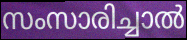
സംസാരിച്ചാൽ